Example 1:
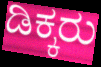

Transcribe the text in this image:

ಡಿಕ್ಕರು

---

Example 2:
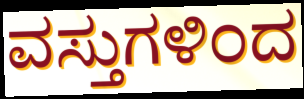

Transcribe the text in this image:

ವಸ್ತುಗಳಿಂದ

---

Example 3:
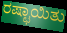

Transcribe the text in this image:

ರಷ್ಟಾಯಿತು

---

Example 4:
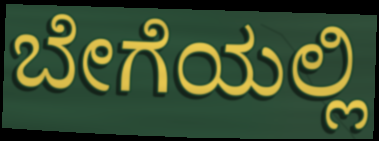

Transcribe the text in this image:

ಬೇಗೆಯಲ್ಲಿ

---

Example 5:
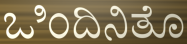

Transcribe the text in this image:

ಒಿಂದಿನಿತೊ